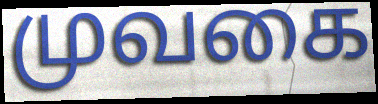
முவகை